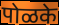
पोळके